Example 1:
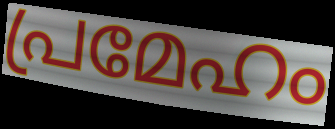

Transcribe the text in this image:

പ്രമേഹം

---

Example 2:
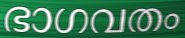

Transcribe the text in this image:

ഭാഗവതം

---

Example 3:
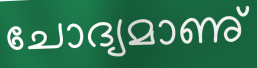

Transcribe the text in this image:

ചോദ്യമാണു്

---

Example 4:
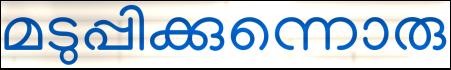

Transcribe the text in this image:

മടുപ്പിക്കുന്നൊരു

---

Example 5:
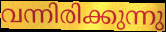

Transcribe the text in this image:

വന്നിരിക്കുന്നു